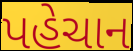
પહેચાન